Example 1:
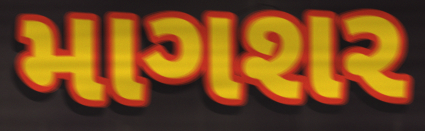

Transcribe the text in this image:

માગશર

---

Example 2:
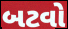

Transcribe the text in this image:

બટવો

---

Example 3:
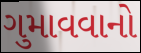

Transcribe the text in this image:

ગુમાવવાનો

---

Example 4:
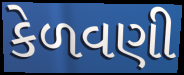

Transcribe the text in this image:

કેળવણી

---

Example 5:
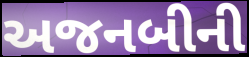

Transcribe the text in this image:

અજનબીની